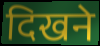
दिखने